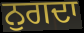
ਨੁਗਦਾ